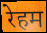
रेहम